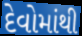
દેવોમાંથી